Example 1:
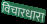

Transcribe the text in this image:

विचारधारा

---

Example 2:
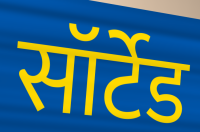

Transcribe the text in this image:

सॉर्टेड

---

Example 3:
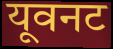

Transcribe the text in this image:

यूवनट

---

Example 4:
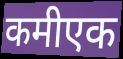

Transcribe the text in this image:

कमीएक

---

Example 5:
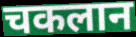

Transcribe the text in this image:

चकलान